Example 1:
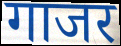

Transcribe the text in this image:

गाजर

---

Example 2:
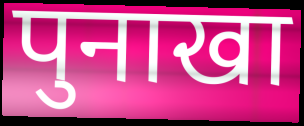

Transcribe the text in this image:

पुनाखा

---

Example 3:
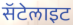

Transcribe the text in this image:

सॅटेलाइट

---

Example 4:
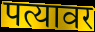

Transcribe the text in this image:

पत्यावर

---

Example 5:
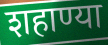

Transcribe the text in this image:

शहाण्या